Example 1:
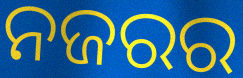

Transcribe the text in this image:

ନଜରର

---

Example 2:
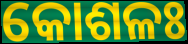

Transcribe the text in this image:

କୋଶଳଃ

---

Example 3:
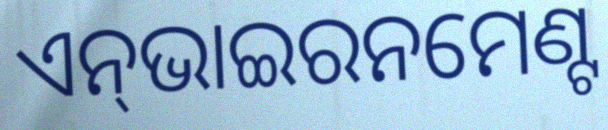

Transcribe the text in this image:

ଏନ୍‌ଭାଇରନମେଣ୍ଟ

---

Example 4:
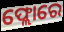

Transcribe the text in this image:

ଫ୍ଲୋରେ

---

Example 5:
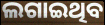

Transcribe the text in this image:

ଲଗାଇଥିବ